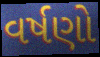
વર્ષણો